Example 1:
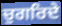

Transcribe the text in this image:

ਚੁਗਰਿਦੇ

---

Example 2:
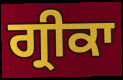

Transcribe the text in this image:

ਗ੍ਰੀਕਾ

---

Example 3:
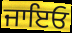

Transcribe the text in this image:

ਜਾਇਓ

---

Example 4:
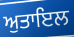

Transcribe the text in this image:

ਅੁਤਾਇਲ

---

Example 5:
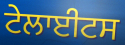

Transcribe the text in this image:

ਟੇਲਾਈਟਸ